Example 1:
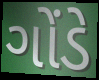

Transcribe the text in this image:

ગોંડે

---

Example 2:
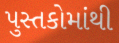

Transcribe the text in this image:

પુસ્તકોમાંથી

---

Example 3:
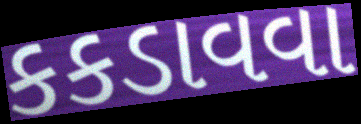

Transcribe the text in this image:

કકડાવવા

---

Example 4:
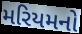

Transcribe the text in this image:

મરિયમનો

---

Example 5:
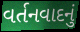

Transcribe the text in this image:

વર્તનવાદનું